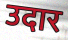
उदार